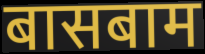
बासबाम